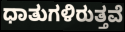
ಧಾತುಗಳಿರುತ್ತವೆ